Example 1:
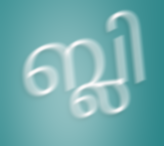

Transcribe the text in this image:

ബ്ലി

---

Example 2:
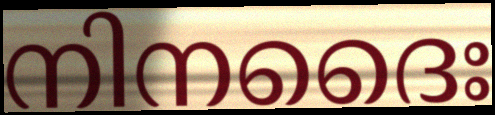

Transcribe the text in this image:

നിനദൈഃ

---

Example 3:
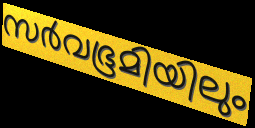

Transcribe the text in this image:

സർവഭൂമിയിലും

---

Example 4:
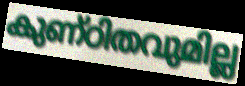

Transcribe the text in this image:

കുണ്ഠിതവുമില്ല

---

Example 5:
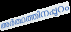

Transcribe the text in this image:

അർത്ഥത്തിനപ്പുറം